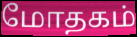
மோதகம்